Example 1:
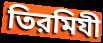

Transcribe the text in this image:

তিরমিযী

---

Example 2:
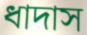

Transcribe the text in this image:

ধাদাস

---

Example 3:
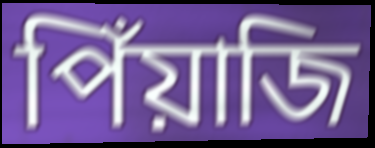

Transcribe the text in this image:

পিঁয়াজি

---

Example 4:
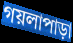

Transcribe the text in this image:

গয়লাপাড়া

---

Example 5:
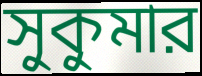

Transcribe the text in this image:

সুকুমার